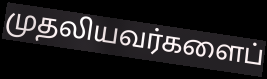
முதலியவர்களைப்